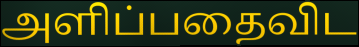
அளிப்பதைவிட